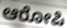
ಆರೋಪಿ